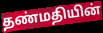
தண்மதியின்